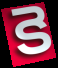
కె